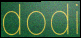
dodi